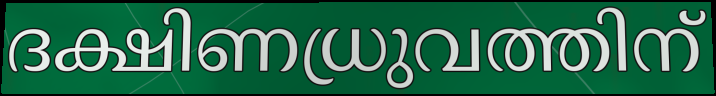
ദക്ഷിണധ്രുവത്തിന്